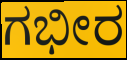
ಗಭೀರ